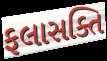
ફલાસક્તિ